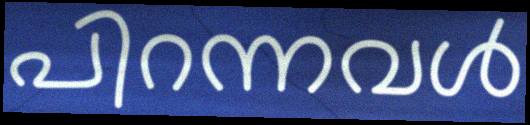
പിറന്നവൾ